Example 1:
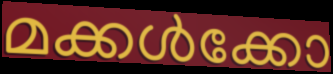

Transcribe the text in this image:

മക്കൾക്കോ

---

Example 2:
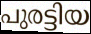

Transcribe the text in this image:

പുരട്ടിയ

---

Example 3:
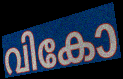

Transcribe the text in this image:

വികോ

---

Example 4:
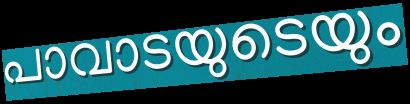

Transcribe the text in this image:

പാവാടയുടെയും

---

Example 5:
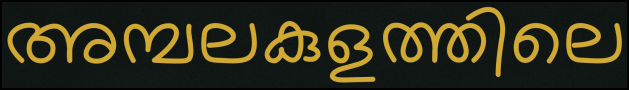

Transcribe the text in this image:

അമ്പലകുളത്തിലെ